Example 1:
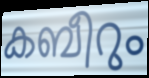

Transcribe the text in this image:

കബീറും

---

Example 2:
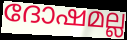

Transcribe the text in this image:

ദോഷമല്ല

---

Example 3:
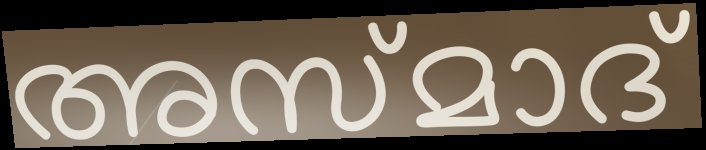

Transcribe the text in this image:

അസ്മാദ്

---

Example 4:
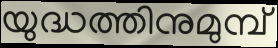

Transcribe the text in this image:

യുദ്ധത്തിനുമുമ്പ്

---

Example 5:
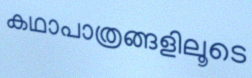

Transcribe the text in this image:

കഥാപാത്രങ്ങളിലൂടെ